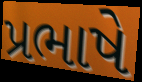
પ્રભાષે